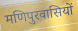
मणिपुरवासियों